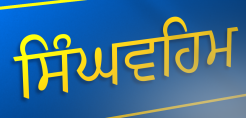
ਸਿੰਘਵਹਿਮ